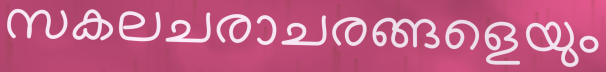
സകലചരാചരങ്ങളെയും